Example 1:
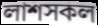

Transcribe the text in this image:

লাশসকল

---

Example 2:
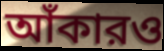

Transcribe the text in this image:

আঁকারও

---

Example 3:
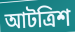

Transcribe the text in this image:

আটত্রিশ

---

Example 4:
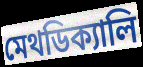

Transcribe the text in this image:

মেথডিক্যালি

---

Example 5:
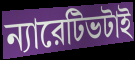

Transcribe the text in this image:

ন্যারেটিভটাই